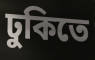
ঢুকিতে